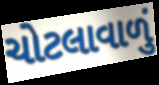
ચોટલાવાળું